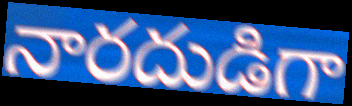
నారదుడిగా